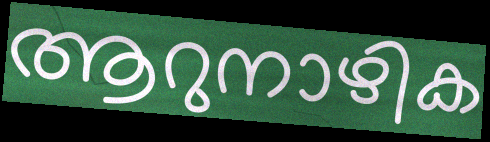
ആറുനാഴിക